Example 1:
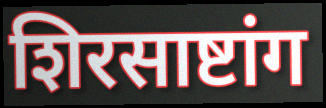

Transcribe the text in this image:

शिरसाष्टांग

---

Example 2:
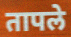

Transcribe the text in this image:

तापले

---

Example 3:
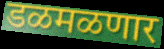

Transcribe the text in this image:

डळमळणार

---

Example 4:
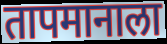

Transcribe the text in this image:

तापमानाला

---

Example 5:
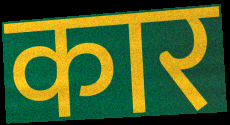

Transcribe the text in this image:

कार